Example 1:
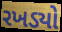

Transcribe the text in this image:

રખડ્યો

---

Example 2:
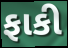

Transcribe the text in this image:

ફાકી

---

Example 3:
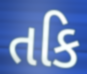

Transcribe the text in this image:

તકિ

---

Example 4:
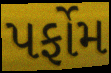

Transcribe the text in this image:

પર્ફોમ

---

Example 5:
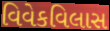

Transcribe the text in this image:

વિવેકવિલાસ